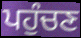
ਪਹੁੰਚਣ